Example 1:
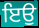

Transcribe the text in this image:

ਇਉ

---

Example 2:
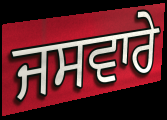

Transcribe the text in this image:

ਜਸਵਾਰੇ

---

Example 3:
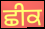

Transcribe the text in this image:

ਛੀਕ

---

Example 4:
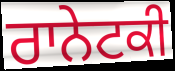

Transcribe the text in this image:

ਰਾਨੇਟਕੀ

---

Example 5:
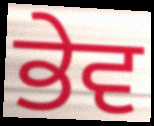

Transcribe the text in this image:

ਭੇਵ